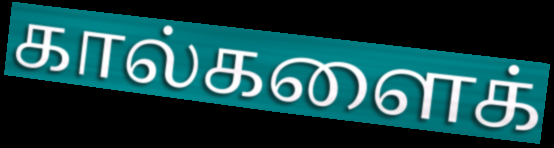
கால்களைக்